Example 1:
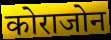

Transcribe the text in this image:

कोराजोन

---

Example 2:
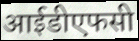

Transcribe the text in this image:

आईडीएफसी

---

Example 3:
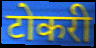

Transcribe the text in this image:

टोकरी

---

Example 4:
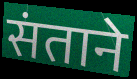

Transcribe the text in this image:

संताने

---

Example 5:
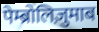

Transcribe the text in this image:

पेम्ब्रोलिज़ुमाब